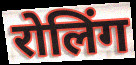
रोलिंग